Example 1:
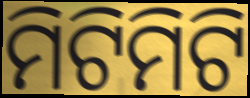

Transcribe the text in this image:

ମିଟିମିଟି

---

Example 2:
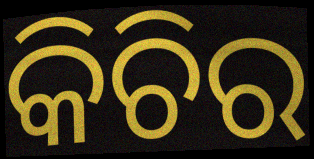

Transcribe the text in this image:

କିଚିର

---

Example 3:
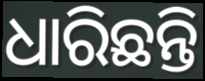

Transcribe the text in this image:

ଧାରିଛନ୍ତି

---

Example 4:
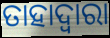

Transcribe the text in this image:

ତାହାଦ୍ୱାରା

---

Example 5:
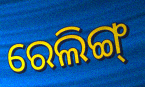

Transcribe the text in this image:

ରେଲିଙ୍ଗ୍